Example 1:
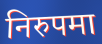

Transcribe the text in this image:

निरुपमा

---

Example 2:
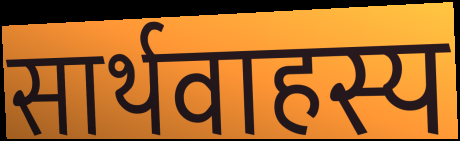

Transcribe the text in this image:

सार्थवाहस्य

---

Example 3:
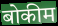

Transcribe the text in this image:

बोकीम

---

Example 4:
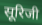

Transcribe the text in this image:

सूरिजी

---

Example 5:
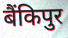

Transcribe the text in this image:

बैंकिपुर